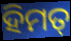
ହିମତ୍